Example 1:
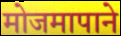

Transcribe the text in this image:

मोजमापाने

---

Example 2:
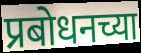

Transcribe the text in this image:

प्रबोधनच्या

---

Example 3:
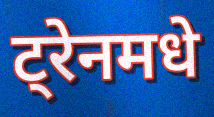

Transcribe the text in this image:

ट्रेनमधे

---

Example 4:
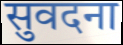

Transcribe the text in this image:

सुवदना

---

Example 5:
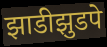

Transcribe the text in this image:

झाडीझुडपे